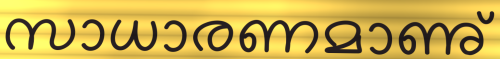
സാധാരണമാണു്